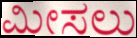
ಮೀಸಲು